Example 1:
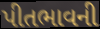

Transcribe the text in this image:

પીતભાવની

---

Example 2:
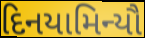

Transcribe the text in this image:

દિનયામિન્યૌ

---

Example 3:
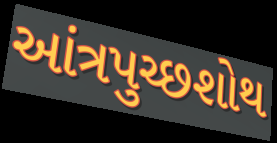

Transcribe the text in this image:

આંત્રપુચ્છશોથ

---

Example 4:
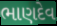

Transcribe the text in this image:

ભાણદેવ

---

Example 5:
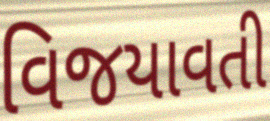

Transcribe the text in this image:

વિજયાવતી